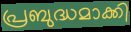
പ്രബുദ്ധമാക്കി